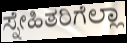
ಸ್ನೇಹಿತರಿಗೆಲ್ಲಾ